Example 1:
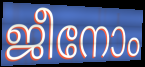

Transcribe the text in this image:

ജീനോം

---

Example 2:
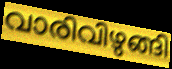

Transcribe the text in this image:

വാരിവിഴുങ്ങി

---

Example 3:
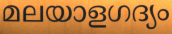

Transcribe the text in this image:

മലയാളഗദ്യം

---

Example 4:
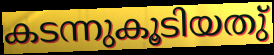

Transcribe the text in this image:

കടന്നുകൂടിയതു്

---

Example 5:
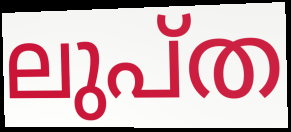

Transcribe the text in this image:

ലുപ്ത